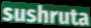
sushruta